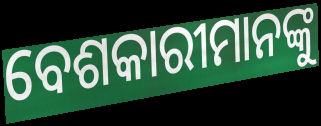
ବେଶକାରୀମାନଙ୍କୁ